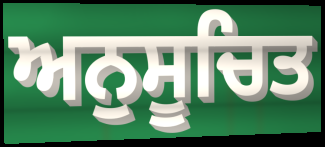
ਅਨੁਸੂਚਿਤ